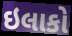
ઇલાકો